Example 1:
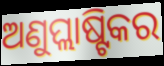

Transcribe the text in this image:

ଅଣୁପ୍ଲାଷ୍ଟିକର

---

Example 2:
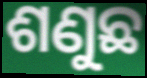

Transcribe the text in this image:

ଶଣୁଛ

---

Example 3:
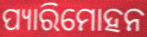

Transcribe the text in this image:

ପ୍ୟାରିମୋହନ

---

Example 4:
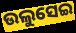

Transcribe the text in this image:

ଉଲୁସେଇ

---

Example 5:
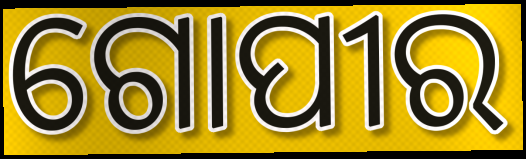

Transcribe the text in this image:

ଗୋପୀର